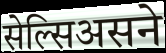
सेल्सिअसने